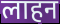
लाहन